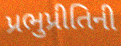
પ્રભુપ્રીતિની